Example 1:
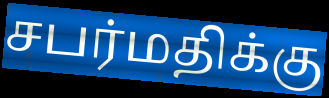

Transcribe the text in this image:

சபர்மதிக்கு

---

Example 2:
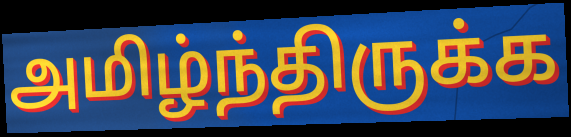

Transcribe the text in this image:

அமிழ்ந்திருக்க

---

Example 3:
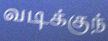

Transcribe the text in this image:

வடிக்குந்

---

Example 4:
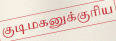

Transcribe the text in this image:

குடிமகனுக்குரிய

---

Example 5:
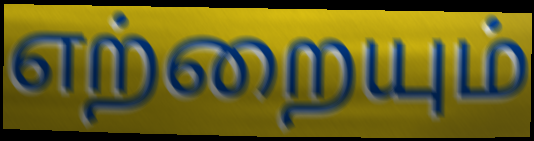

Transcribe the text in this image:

எற்றையும்